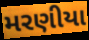
મરણીયા